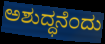
ಅಶುದ್ಧನೆಂದು